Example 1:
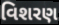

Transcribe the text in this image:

વિશરણ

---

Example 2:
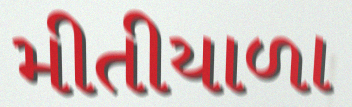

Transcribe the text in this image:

મીતીયાળા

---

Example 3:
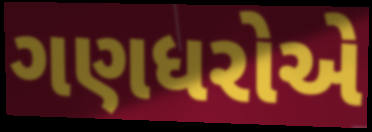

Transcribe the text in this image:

ગણધરોએ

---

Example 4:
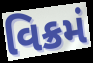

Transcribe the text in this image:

વિક્રમં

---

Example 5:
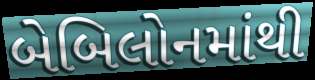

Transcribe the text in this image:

બેબિલોનમાંથી